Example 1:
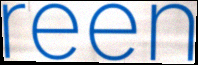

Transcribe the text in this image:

reen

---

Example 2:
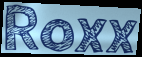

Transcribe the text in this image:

Roxx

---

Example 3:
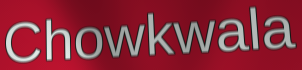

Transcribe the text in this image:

Chowkwala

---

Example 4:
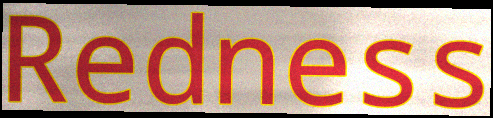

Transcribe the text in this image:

Redness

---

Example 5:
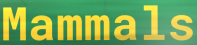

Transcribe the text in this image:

Mammals